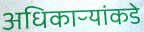
अधिकाऱ्यांकडे